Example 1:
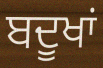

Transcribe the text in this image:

ਬਦੂਖਾਂ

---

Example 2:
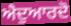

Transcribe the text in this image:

ਐਦੁਆਰਦੋ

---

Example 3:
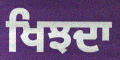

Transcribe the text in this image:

ਖਿਝਦਾ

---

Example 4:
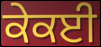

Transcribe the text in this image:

ਕੇਕਈ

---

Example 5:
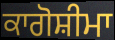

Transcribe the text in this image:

ਕਾਗੋਸ਼ੀਮਾ